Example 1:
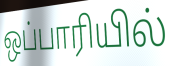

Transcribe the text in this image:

ஒப்பாரியில்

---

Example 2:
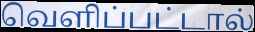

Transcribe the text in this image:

வெளிப்பட்டால்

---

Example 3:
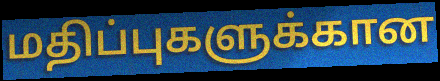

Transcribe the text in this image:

மதிப்புகளுக்கான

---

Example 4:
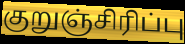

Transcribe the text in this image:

குறுஞ்சிரிப்பு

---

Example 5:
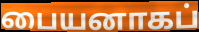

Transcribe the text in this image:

பையனாகப்